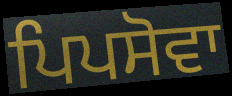
ਪਿਪਸੋਵਾ